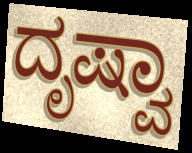
ದೃಷ್ವಾ